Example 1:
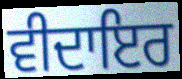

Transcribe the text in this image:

ਵੀਦਾਇਰ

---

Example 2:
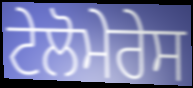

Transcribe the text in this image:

ਟੇਲੋਮੇਰੇਸ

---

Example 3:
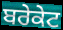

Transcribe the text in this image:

ਬਰੇਕੇਟ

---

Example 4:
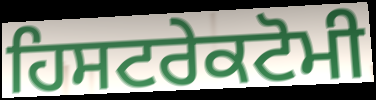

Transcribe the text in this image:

ਹਿਸਟਰੇਕਟੋਮੀ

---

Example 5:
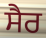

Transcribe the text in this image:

ਸੈਰ